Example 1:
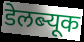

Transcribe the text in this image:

डेलब्ऱ्यूक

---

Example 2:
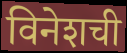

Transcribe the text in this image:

विनेशची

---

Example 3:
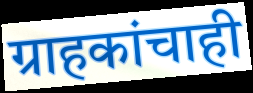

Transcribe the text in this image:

ग्राहकांचाही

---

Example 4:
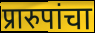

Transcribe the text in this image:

प्रारुपांचा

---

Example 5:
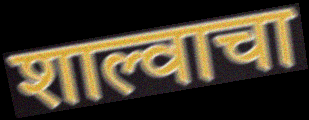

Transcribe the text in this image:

शाल्वाचा